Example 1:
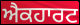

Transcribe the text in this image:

ਐਕਹਾਰਟ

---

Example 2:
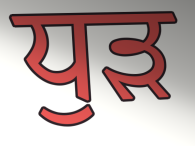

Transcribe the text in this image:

ਧੁੜ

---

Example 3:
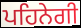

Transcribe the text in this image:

ਪਹਿਨੇਗੀ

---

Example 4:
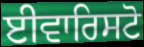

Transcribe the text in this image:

ਈਵਾਰਿਸਟੋ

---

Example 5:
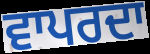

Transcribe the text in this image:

ਵਾਪਰਦਾ